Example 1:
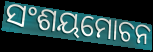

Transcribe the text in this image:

ସଂଶୟମୋଚନ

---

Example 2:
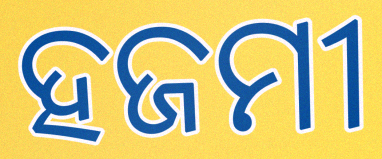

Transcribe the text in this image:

ହଜମୀ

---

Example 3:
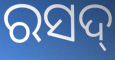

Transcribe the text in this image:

ରସଦ୍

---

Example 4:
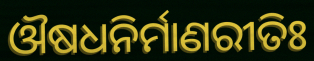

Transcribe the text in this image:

ଔଷଧନିର୍ମାଣରୀତିଃ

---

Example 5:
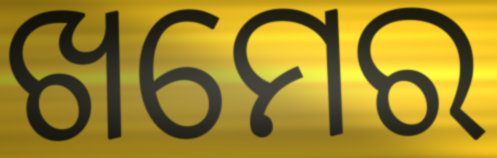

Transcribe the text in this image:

ଖମେର